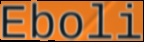
Eboli